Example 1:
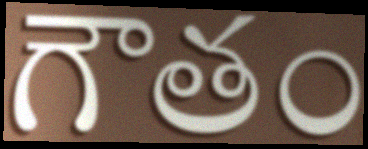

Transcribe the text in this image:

గౌతం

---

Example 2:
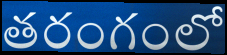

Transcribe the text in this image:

తరంగంలో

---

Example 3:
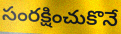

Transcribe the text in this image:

సంరక్షించుకొనే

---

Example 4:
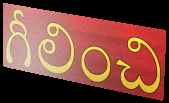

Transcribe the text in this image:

గీలించి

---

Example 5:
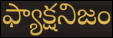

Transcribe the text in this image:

ఫ్యాక్షనిజం